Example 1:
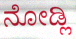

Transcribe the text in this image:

ನೋಡ್ಲಿ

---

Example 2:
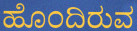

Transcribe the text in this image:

ಹೊಂದಿರುವ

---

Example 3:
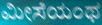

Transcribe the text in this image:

ಮೀಸೆಯಂಥ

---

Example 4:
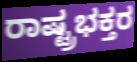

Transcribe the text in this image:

ರಾಷ್ಟ್ರಭಕ್ತರ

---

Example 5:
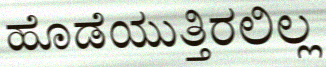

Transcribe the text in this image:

ಹೊಡೆಯುತ್ತಿರಲಿಲ್ಲ